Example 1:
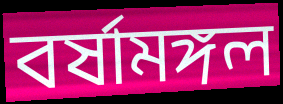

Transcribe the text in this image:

বর্ষামঙ্গল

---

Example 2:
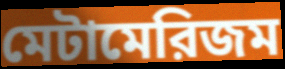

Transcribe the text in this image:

মেটামেরিজম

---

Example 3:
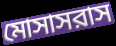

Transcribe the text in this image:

মোসাসরাস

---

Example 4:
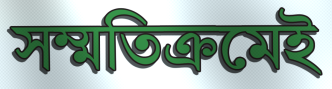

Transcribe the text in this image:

সম্মতিক্রমেই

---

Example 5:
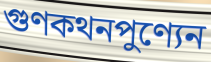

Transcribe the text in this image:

গুণকথনপুণ্যেন